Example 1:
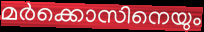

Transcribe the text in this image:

മർക്കൊസിനെയും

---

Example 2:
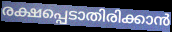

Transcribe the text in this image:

രക്ഷപ്പെടാതിരിക്കാൻ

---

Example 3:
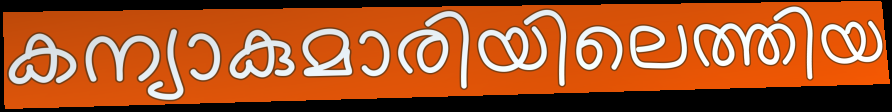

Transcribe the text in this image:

കന്യാകുമാരിയിലെത്തിയ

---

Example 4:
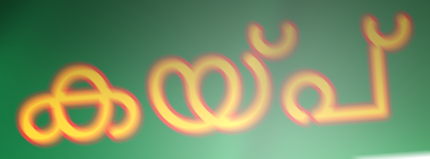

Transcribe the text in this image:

കയ്പ്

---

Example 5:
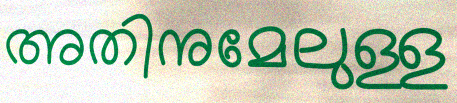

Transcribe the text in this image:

അതിനുമേലുള്ള